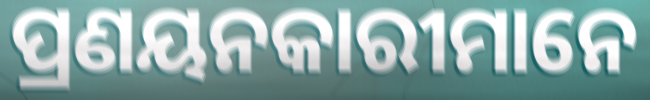
ପ୍ରଣୟନକାରୀମାନେ